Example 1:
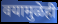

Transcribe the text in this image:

वयामुळेही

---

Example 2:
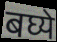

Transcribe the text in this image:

बघ्ये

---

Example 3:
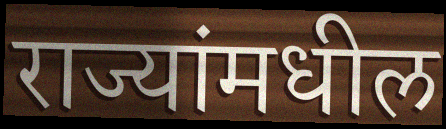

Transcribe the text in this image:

राज्यांमधील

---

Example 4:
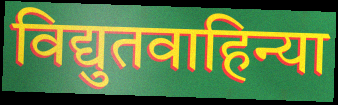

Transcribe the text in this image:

विद्युतवाहिन्या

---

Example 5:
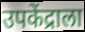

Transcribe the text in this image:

उपकेंद्राला